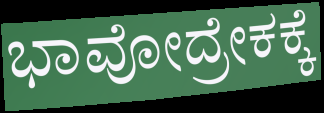
ಭಾವೋದ್ರೇಕಕ್ಕೆ